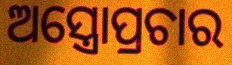
ଅସ୍ତ୍ରୋପ୍ରଚାର